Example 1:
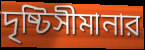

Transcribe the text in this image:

দৃষ্টিসীমানার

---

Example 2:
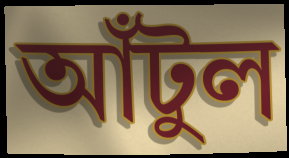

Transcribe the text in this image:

আঁটুল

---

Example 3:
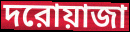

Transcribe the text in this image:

দরোয়াজা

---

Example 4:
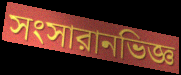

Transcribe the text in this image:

সংসারানভিজ্ঞ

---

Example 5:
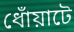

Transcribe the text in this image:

ধোঁয়াটে